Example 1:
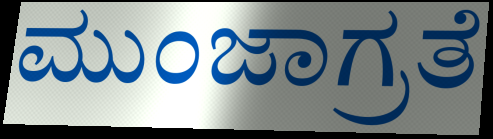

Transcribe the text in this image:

ಮುಂಜಾಗ್ರತೆ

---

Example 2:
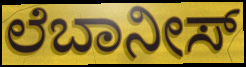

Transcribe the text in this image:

ಲೆಬಾನೀಸ್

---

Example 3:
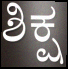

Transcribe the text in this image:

ಶಿಕ್ಷ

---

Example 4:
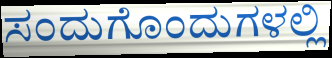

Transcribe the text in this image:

ಸಂದುಗೊಂದುಗಳಲ್ಲಿ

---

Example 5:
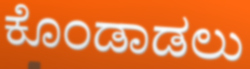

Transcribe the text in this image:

ಕೊಂಡಾಡಲು